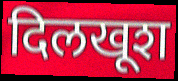
दिलखूश